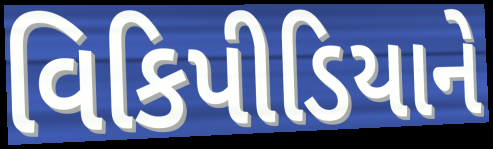
વિકિપીડિયાને